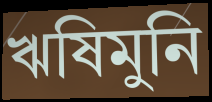
ঋষিমুনি